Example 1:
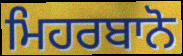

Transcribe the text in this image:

ਮਿਹਰਬਾਨੋ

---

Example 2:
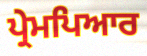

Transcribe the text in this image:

ਪ੍ਰੇਮਪਿਆਰ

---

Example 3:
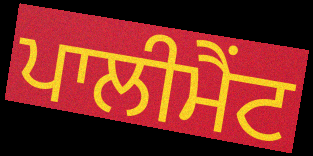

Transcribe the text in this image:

ਪਾਲੀਮੈਂਟ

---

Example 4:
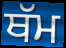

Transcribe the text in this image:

ਥੱਮ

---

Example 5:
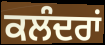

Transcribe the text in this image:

ਕਲੰਦਰਾਂ